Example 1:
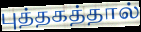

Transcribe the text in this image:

புத்தகத்தால்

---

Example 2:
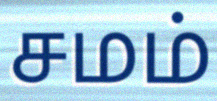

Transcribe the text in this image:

சமம்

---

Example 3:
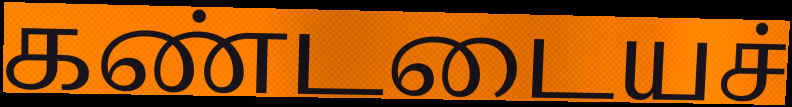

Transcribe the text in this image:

கண்டடையச்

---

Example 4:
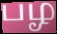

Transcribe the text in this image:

பழ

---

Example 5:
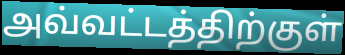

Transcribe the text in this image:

அவ்வட்டத்திற்குள்